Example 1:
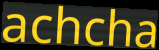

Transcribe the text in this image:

achcha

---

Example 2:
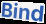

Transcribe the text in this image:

Bind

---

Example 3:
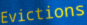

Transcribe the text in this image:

Evictions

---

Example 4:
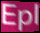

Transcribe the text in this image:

Epl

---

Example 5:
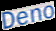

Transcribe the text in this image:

Deno